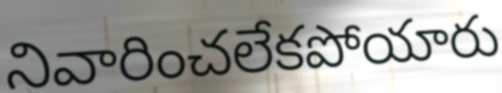
నివారించలేకపోయారు